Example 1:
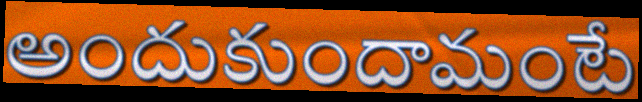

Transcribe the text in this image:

అందుకుందామంటే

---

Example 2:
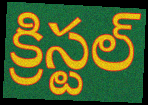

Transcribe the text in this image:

క్రిస్టల్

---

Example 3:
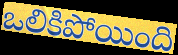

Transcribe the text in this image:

ఒలికిపోయింది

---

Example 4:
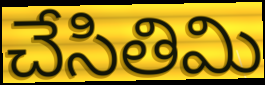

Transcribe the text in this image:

చేసితిమి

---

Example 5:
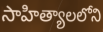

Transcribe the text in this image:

సాహిత్యాలలోని